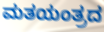
ಮತಯಂತ್ರದ